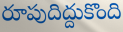
రూపుదిద్దుకొంది